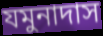
যমুনাদাস